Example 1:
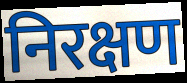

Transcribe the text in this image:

निरक्षण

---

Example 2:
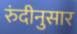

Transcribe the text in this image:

रुंदीनुसार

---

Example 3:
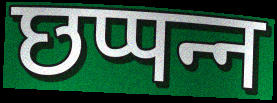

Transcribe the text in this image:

छप्पन्न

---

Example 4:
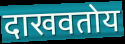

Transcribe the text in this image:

दाखवतोय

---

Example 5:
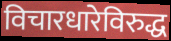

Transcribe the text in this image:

विचारधारेविरुद्ध